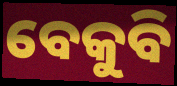
ବେକୁବି